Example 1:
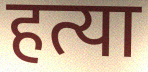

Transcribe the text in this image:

हत्या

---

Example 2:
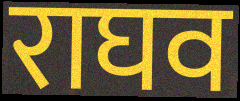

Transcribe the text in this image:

राघव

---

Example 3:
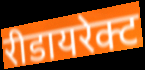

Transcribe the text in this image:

रीडायरेक्ट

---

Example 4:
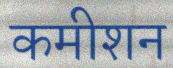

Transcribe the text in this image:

कमीशन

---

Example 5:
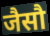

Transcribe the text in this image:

जैसौ